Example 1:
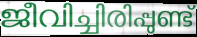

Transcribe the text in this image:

ജീവിച്ചിരിപ്പുണ്ട്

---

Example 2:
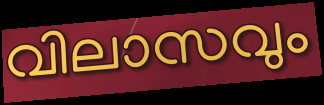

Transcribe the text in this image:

വിലാസവും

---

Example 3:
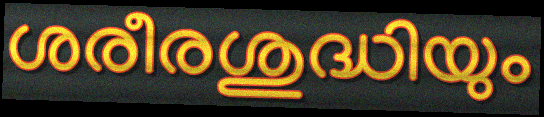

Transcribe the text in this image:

ശരീരശുദ്ധിയും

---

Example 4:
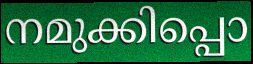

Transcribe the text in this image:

നമുക്കിപ്പൊ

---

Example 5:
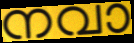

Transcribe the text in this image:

നവാ